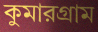
কুমারগ্রাম